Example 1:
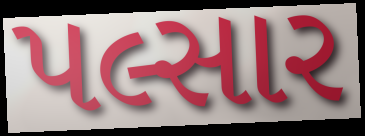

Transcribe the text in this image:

પલ્સાર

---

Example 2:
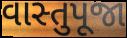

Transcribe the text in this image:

વાસ્તુપૂજા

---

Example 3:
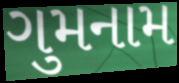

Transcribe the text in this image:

ગુમનામ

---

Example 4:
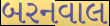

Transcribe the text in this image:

બરનવાલ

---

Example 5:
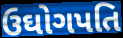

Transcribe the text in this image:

ઉઘોગપતિ